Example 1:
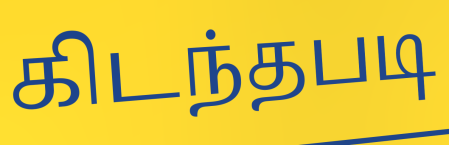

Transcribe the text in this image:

கிடந்தபடி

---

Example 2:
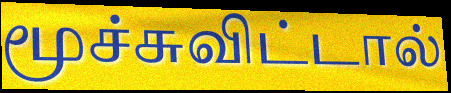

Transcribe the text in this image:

மூச்சுவிட்டால்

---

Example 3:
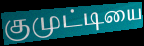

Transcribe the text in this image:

குமுட்டியை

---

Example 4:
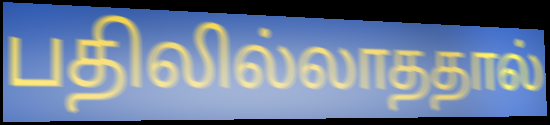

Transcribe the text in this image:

பதிலில்லாததால்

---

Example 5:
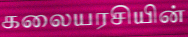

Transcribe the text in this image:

கலையரசியின்